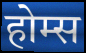
होम्स